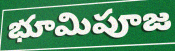
భూమిపూజ